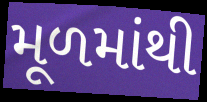
મૂળમાંથી